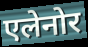
एलेनोर